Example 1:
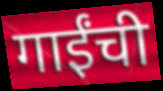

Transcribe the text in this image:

गाईंची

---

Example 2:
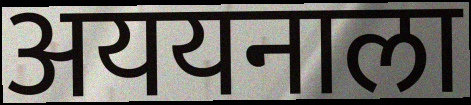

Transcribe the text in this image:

अययनाला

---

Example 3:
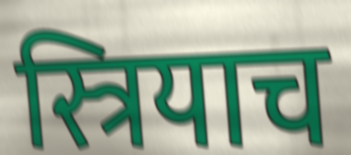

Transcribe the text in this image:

स्त्रियाच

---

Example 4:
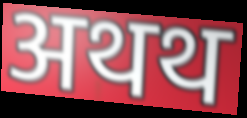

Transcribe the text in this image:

अथथ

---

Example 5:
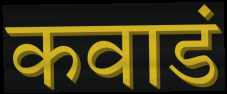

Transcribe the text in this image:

कवाडं